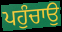
ਪਹੁੰਚਾਉ